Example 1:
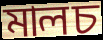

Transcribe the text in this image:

মালচ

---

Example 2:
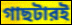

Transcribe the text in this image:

গাছটারই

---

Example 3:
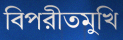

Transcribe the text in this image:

বিপরীতমুখি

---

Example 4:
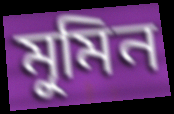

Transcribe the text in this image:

মুমিন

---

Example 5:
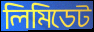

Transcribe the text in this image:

লিমিডেট